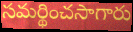
సమర్థించసాగారు